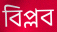
বিপ্লব